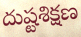
దుష్టశిక్షణ